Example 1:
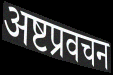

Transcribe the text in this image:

अष्टप्रवचन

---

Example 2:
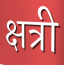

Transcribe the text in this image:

क्षत्री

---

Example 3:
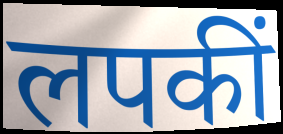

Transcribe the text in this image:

लपकीं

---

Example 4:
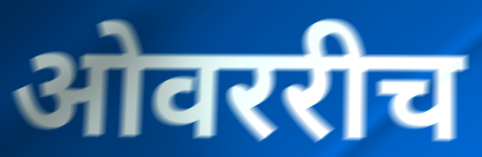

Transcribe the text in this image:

ओवररीच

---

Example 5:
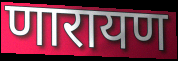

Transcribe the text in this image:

णारायण